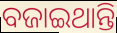
ବଜାଇଥାନ୍ତି